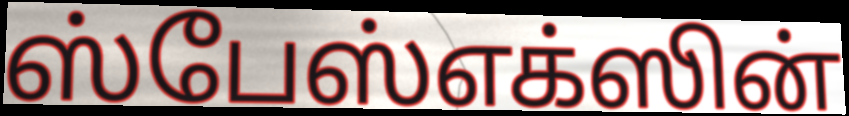
ஸ்பேஸ்எக்ஸின்